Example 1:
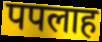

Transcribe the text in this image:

पपलाह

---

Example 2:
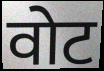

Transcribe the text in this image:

वोट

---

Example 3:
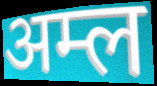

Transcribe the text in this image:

अम्ल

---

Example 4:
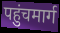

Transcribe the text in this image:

पहुंचमार्ग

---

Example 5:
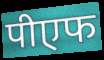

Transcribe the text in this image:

पीएफ